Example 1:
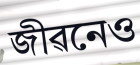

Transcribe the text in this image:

জীৱনেও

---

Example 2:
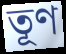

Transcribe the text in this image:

তূণ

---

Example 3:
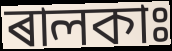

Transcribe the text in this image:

ৰালকাঃ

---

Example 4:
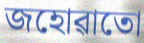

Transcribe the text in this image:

জহোৱাতো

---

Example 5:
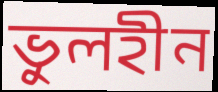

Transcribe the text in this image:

ভুলহীন